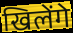
खिलेंगे